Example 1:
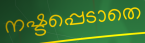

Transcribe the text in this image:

നഷ്ടപ്പെടാതെ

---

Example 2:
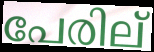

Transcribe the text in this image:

പേരില്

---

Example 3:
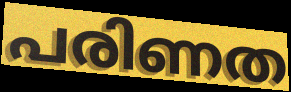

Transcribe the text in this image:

പരിണത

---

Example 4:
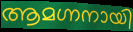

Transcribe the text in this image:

ആമഗ്നനായി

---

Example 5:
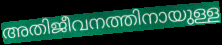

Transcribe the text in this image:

അതിജീവനത്തിനായുള്ള